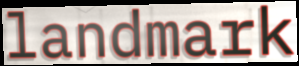
landmark